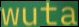
wuta